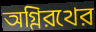
অগ্নিরথের